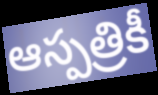
ఆస్పత్రికీ